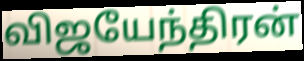
விஜயேந்திரன்